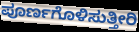
ಪೂರ್ಣಗೊಳಿಸುತ್ತೀರಿ